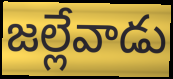
జల్లేవాడు